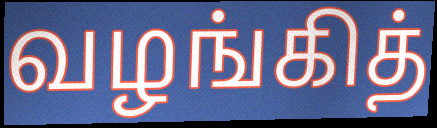
வழங்கித்